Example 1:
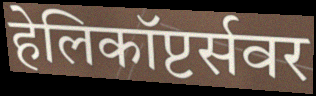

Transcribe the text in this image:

हेलिकॉप्टर्सवर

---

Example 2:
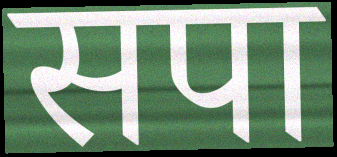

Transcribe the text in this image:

सपा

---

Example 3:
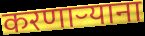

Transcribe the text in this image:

करणाऱ्याना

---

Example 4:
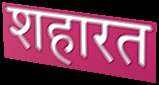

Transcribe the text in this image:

शहारत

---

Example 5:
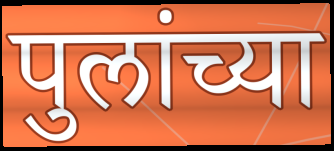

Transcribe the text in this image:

पुलांच्या